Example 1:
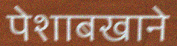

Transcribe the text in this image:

पेशाबखाने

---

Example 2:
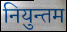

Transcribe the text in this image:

नियुन्तम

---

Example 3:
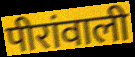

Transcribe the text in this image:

पीरांवाली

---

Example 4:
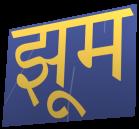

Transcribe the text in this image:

झूम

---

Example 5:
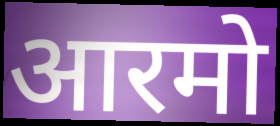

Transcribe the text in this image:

आरमो